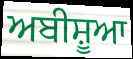
ਅਬੀਸ਼ੂਆ